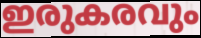
ഇരുകരവും